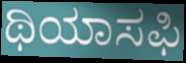
ಥಿಯಾಸಫಿ